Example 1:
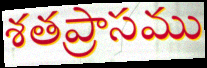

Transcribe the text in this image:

శతప్రాసము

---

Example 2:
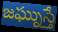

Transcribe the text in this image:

జఘ్నుస్తే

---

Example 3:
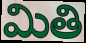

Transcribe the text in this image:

మితి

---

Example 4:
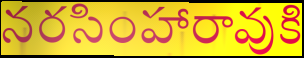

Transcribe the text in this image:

నరసింహారావుకి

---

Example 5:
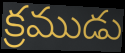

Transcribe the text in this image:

క్రముడు